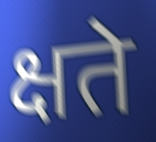
क्षते